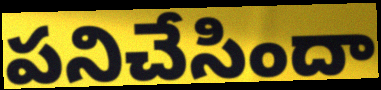
పనిచేసిందా